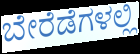
ಬೇರೆಡೆಗಳಲ್ಲಿ